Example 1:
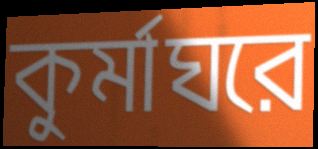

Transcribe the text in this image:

কুর্মাঘরে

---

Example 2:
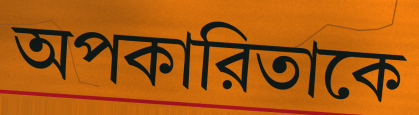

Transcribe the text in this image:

অপকারিতাকে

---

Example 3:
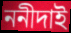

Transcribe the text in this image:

ননীদাই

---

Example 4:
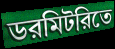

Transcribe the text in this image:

ডরমিটরিতে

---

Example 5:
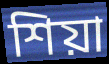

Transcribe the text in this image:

শিয়া